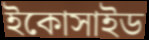
ইকোসাইড